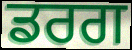
ਡਰਗ